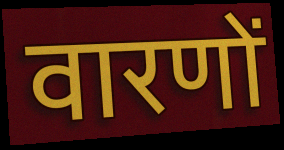
वारणों